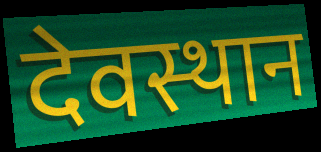
देवस्थान